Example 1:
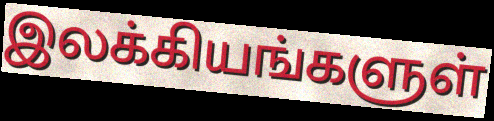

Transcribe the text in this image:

இலக்கியங்களுள்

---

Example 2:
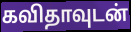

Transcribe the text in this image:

கவிதாவுடன்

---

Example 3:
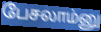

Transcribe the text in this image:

பேசலாம்னு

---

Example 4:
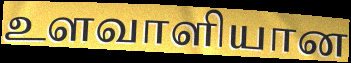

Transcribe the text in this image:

உளவாளியான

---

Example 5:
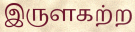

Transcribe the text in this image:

இருளகற்ற